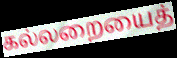
கல்லறையைத்